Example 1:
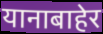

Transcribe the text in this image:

यानाबाहेर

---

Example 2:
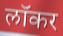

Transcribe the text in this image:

लॉकर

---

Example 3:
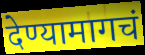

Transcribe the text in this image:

देण्यामागचं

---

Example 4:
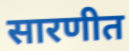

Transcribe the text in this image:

सारणीत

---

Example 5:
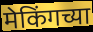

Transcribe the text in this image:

मेकिंगच्या